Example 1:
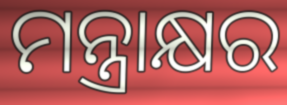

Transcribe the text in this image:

ମନ୍ତ୍ରାକ୍ଷର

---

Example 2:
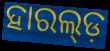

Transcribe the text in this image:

ହାରଲ୍ଡ଼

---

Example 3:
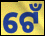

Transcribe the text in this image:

ଟେଁ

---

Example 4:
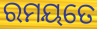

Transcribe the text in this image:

ରମୟତେ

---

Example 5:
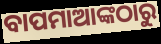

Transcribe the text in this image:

ବାପମାଆଙ୍କଠାରୁ